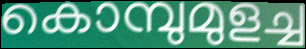
കൊമ്പുമുളച്ച